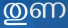
തുണ